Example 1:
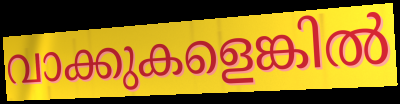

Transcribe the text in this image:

വാക്കുകളെങ്കിൽ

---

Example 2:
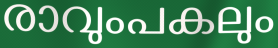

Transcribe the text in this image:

രാവുംപകലും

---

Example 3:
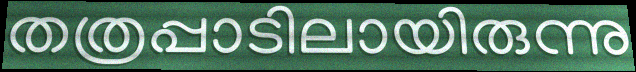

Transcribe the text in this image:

തത്രപ്പാടിലായിരുന്നു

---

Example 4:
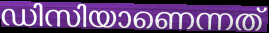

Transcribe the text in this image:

ഡിസിയാണെന്നത്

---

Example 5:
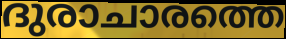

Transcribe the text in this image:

ദുരാചാരത്തെ